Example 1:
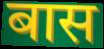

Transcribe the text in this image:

बास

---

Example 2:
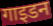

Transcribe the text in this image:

गाइडन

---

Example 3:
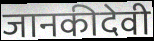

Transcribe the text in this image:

जानकीदेवी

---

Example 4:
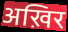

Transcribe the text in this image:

अख़िर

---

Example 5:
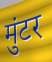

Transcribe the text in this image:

मुंटर